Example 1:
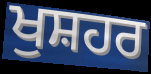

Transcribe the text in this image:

ਖੁਸ਼ਹਰ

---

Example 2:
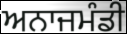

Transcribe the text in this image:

ਅਨਾਜਮੰਡੀ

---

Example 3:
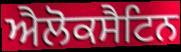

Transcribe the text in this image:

ਐਲੋਕਸੈਟਿਨ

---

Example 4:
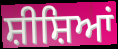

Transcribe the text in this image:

ਸ਼ੀਸ਼ਿਆਂ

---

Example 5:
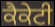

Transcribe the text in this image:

ਕੈਕੇਟੀ